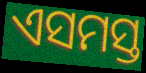
ଏସମସ୍ତ